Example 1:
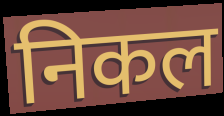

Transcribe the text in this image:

निकल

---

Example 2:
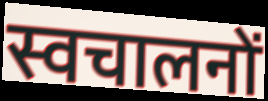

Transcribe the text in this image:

स्वचालनों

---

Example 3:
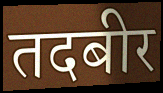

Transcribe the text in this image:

तदबीर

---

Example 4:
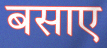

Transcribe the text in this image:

बसाए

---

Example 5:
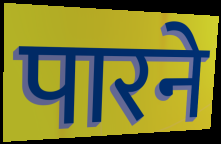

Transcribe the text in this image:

पारने